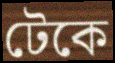
টেকে